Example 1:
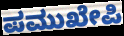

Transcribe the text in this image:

ಪಮುಖೇಪಿ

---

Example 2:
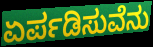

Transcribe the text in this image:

ಏರ್ಪಡಿಸುವೆನು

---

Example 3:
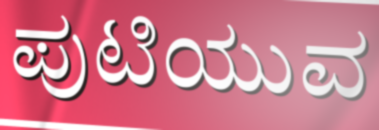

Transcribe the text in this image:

ಪುಟಿಯುವ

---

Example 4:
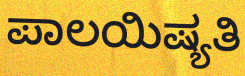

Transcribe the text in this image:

ಪಾಲಯಿಷ್ಯತಿ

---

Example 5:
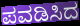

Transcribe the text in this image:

ಪವಡಿಸಿದ